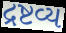
દ્રષ્ટવ્ય